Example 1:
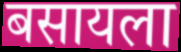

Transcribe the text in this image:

बसायला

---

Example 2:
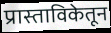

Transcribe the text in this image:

प्रास्ताविकेतून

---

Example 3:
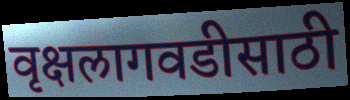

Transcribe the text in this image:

वृक्षलागवडीसाठी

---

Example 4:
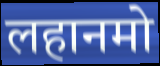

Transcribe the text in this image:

लहानमो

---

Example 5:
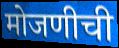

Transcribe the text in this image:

मोजणीची